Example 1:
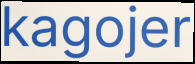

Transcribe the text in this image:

kagojer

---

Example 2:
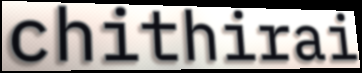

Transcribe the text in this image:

chithirai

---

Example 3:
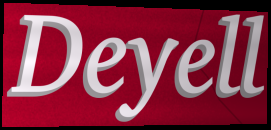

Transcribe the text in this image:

Deyell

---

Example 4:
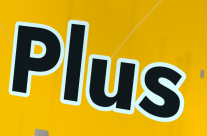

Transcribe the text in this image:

Plus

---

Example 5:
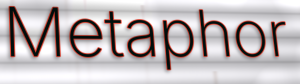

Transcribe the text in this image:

Metaphor